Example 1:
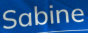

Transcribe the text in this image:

Sabine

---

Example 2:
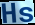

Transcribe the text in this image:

Hs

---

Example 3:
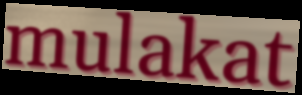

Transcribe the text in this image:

mulakat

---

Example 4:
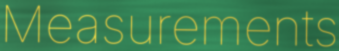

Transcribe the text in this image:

Measurements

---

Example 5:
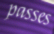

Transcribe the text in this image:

passes